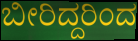
ಬೀರಿದ್ದರಿಂದ